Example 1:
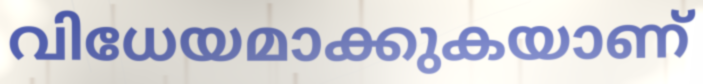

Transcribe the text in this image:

വിധേയമാക്കുകയാണ്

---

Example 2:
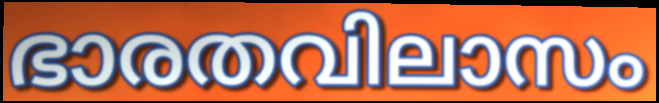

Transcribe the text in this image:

ഭാരതവിലാസം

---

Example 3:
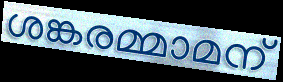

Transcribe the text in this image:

ശങ്കരമ്മാമന്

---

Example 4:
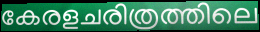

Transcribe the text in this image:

കേരളചരിത്രത്തിലെ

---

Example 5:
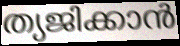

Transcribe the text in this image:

ത്യജിക്കാൻ